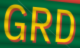
GRD